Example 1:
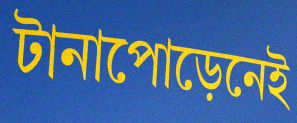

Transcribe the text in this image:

টানাপোড়েনেই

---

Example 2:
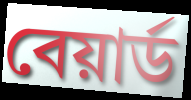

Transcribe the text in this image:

বেয়ার্ড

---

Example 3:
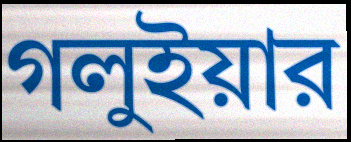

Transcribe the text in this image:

গলুইয়ার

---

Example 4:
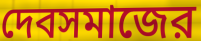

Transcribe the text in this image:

দেবসমাজের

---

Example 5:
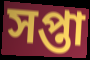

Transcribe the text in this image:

সপ্তা